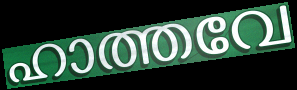
ഹാത്തവേ